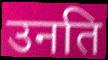
उनति